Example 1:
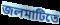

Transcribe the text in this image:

জলমাটিতে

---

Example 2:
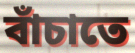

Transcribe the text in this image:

বাঁচাতে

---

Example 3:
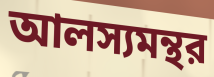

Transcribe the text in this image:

আলস্যমন্থর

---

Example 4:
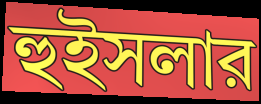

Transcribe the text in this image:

হুইসলার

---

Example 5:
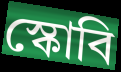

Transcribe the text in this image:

স্কোবি